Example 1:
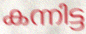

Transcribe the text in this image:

കന്നിട്ട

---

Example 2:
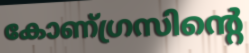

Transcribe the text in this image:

കോണ്ഗ്രസിന്റെ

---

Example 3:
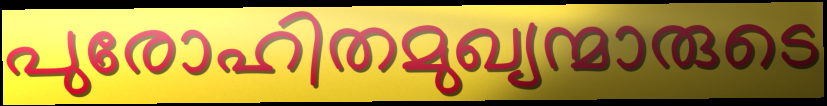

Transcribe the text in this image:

പുരോഹിതമുഖ്യന്മാരുടെ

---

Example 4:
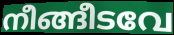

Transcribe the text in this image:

നീങ്ങീടവേ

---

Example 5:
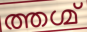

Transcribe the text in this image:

ത്തഗ്മ്